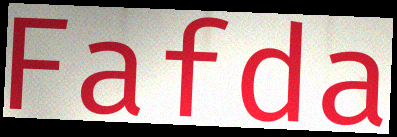
Fafda